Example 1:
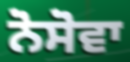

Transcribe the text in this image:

ਨੋਸੋਵਾ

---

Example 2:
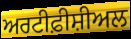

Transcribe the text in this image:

ਅਰਟੀਫ਼ੀਸ਼ੀਅਲ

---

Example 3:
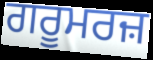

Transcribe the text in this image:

ਗਰੂਮਰਜ਼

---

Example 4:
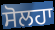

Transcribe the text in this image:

ਸੋਲਹਾ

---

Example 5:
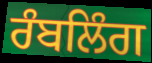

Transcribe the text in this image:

ਰੰਬਲਿੰਗ